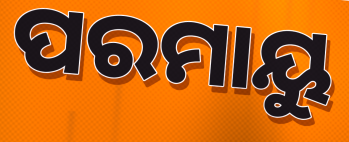
ପରମାୟୁ